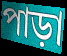
পাড়া